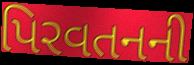
પિરવતનની